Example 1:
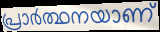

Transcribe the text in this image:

പ്രാർത്ഥനയാണ്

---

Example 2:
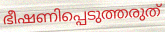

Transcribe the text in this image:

ഭീഷണിപ്പെടുത്തരുത്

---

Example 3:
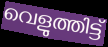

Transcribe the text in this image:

വെളുത്തിട്ട്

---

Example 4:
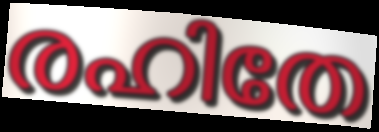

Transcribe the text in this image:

രഹിതേ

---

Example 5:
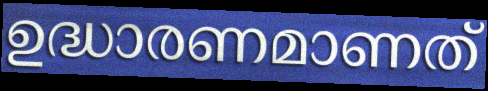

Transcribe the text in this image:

ഉദ്ധാരണമാണത്